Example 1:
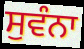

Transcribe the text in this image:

ਸੁਵੰਨਾ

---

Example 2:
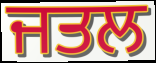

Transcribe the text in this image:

ਜਤਲ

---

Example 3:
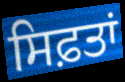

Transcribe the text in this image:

ਸਿਫ਼ਤਾਂ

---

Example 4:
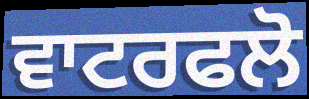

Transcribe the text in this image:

ਵਾਟਰਫਲੋ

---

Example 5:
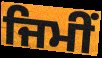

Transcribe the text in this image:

ਜਿਮੀਂ